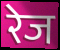
रेज